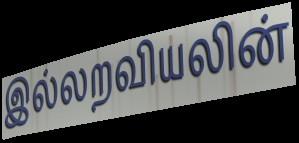
இல்லறவியலின்